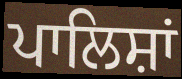
ਪਾਲਿਸ਼ਾਂ